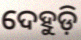
ଦେହୁଡ଼ି